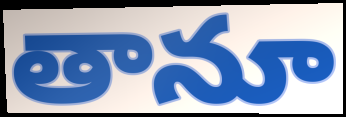
తానూ